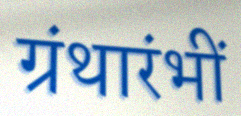
ग्रंथारंभीं